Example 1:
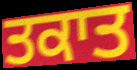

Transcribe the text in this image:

ਤਕਾਤ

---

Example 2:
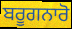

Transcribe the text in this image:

ਬਰੂਗਨਾਰੋ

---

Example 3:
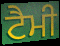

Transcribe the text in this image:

ਟੈਮੀ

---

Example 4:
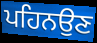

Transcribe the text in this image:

ਪਹਿਨਉਣ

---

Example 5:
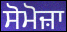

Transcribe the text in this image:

ਸੋਮੋਜ਼ਾ